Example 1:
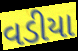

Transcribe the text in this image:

વડીયા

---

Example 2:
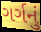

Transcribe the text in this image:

ગર્ગનું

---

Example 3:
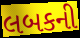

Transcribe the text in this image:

લબકની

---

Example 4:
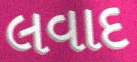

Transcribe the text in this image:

લવાદ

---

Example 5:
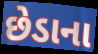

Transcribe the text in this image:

છેડાના